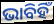
ଭାବିହିଁ